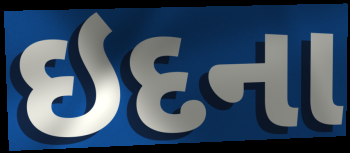
ઇદના